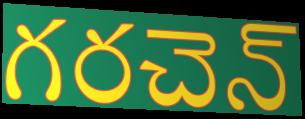
గరచెన్